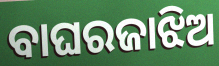
ବାଘରଜାଝିଅ